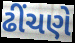
ઢીંચણે